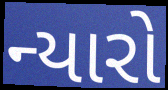
ન્યારો